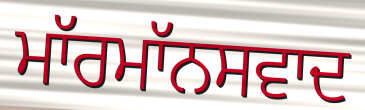
ਮਾੱਰਮਾੱਨਸਵਾਦ